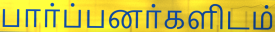
பார்ப்பனர்களிடம்